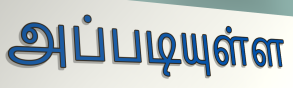
அப்படியுள்ள